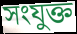
সংযুক্ত